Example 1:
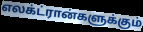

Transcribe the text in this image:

எலக்ட்ரான்களுக்கும்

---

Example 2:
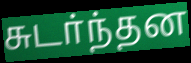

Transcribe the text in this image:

சுடர்ந்தன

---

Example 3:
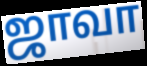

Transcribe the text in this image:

ஜாவா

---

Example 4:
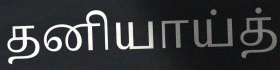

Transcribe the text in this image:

தனியாய்த்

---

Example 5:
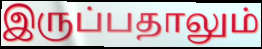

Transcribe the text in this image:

இருப்பதாலும்